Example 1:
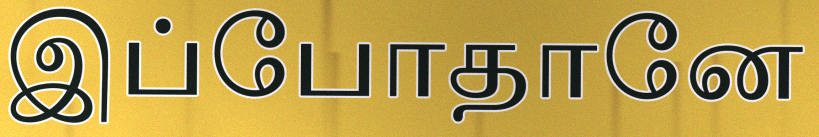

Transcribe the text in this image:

இப்போதானே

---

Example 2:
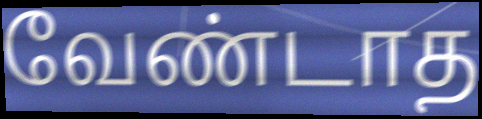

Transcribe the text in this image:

வேண்டாத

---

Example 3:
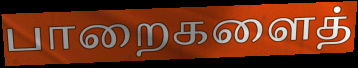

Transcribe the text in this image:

பாறைகளைத்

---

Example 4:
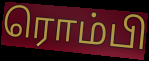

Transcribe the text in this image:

ரொம்பி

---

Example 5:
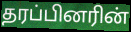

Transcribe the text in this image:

தரப்பினரின்